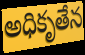
అధికృతేన